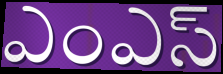
ఎంఎస్